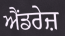
ਐਂਡਰੇਜ਼